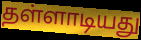
தள்ளாடியது